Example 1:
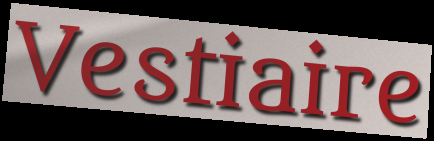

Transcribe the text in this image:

Vestiaire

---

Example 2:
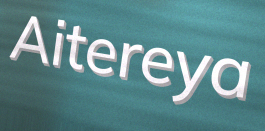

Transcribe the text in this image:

Aitereya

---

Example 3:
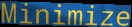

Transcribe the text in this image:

Minimize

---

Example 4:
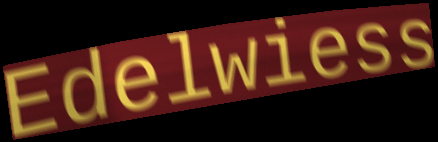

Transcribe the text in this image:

Edelwiess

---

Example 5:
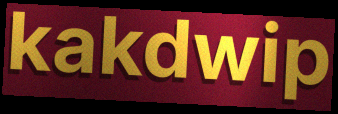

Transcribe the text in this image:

kakdwip